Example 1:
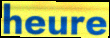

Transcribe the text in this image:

heure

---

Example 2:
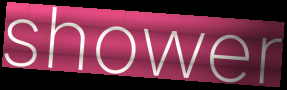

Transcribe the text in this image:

shower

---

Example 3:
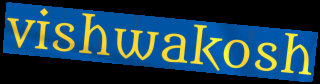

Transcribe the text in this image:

vishwakosh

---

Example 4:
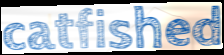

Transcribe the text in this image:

catfished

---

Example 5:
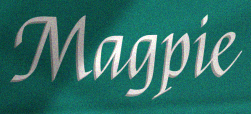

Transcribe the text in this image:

Magpie